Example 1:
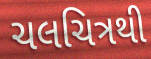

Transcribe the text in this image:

ચલચિત્રથી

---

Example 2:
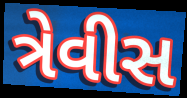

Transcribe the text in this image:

ત્રેવીસ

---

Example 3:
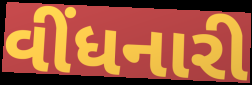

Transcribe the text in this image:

વીંધનારી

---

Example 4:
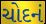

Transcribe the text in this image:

ચોદનં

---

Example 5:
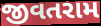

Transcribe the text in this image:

જીવતરામ